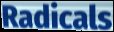
Radicals